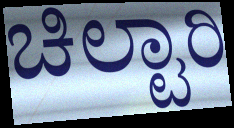
ಚಿಲ್ಟಾರಿ